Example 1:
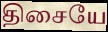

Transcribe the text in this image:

திசையே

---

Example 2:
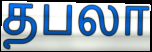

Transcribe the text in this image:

தபலா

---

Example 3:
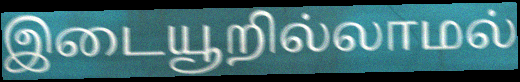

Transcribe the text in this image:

இடையூறில்லாமல்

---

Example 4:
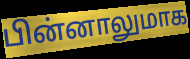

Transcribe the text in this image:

பின்னாலுமாக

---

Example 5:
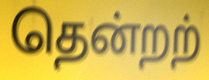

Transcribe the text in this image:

தென்றற்